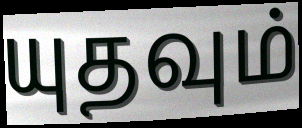
யுதவும்